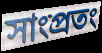
সাংপ্রতং